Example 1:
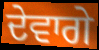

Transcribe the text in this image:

ਦੇਵਾਗੇ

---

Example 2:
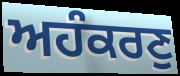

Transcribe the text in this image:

ਅਹੰਕਰਣੁ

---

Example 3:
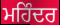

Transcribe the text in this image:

ਮਹਿੰਦਰ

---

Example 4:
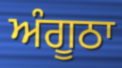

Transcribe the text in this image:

ਅੰਗੂਠਾ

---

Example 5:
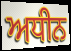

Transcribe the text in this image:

ਅਧੀਨ